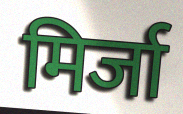
मिर्जा